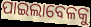
ପାଇଲାବେଳକୁ